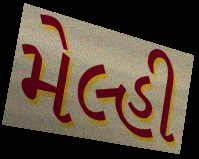
મેલ્હી